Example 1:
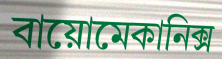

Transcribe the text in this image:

বায়োমেকানিক্স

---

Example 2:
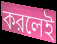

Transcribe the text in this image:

করলেই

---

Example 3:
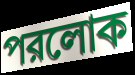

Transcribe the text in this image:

পরলোক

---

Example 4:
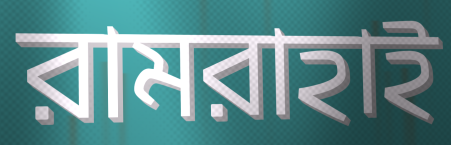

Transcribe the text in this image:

রামরাহাই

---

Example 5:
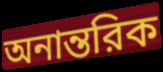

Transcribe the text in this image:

অনান্তরিক